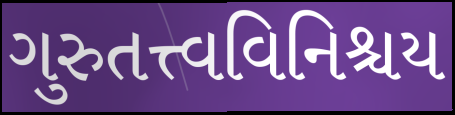
ગુરુતત્ત્વવિનિશ્ચય